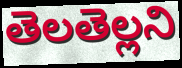
తెలతెల్లని